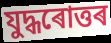
যুদ্ধৰোত্তৰ